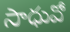
సాధువో